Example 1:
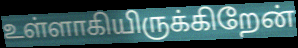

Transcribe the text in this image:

உள்ளாகியிருக்கிறேன்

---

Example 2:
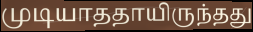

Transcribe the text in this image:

முடியாததாயிருந்தது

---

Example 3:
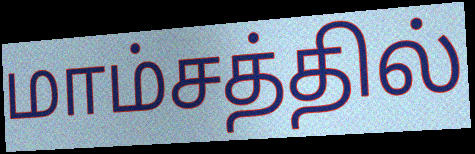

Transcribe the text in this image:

மாம்சத்தில்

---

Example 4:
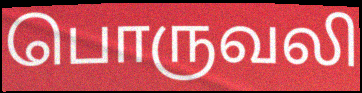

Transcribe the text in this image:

பொருவலி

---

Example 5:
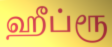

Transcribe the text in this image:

ஹீப்ரூ